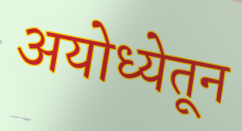
अयोध्येतून